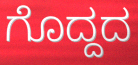
ಗೊದ್ದದ